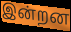
இன்றன